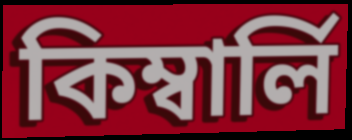
কিম্বার্লি